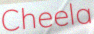
Cheela